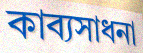
কাব্যসাধনা